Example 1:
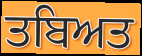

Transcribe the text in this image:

ਤਬਿਅਤ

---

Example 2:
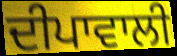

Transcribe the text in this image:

ਦੀਪਾਵਾਲੀ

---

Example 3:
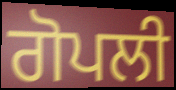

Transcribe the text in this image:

ਗੋਪਲੀ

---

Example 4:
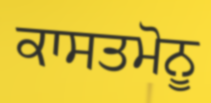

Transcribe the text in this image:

ਕਾਸਤਮੋਨੂ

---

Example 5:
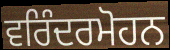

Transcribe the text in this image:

ਵਰਿੰਦਰਮੋਹਨ